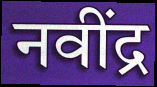
नवींद्र